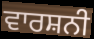
ਵਾਰਸ਼ਨੀ